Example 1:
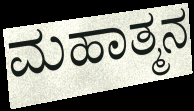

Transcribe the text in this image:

ಮಹಾತ್ಮನ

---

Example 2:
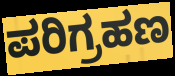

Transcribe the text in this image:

ಪರಿಗ್ರಹಣ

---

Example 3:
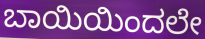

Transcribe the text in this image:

ಬಾಯಿಯಿಂದಲೇ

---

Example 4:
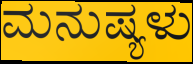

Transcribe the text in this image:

ಮನುಷ್ಯಳು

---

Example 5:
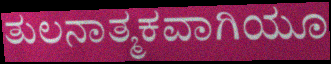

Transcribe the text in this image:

ತುಲನಾತ್ಮಕವಾಗಿಯೂ